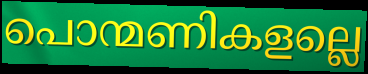
പൊന്മണികളല്ലെ